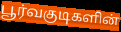
பூர்வகுடிகளின்